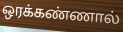
ஒரக்கண்ணால்